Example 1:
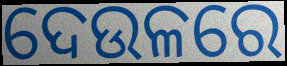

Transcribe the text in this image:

ଦେଉଳରେ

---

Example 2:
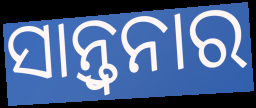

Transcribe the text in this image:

ସାନ୍ତ୍ବନାର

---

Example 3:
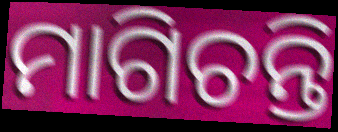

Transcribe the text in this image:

ମାଗିଚନ୍ତି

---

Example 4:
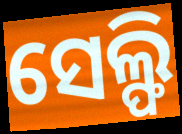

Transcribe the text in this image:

ସେଲ୍ଫି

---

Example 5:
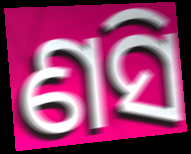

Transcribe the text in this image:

ଣସି